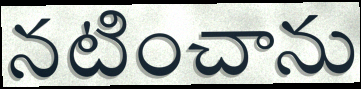
నటించాను